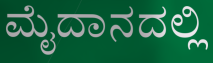
ಮೈದಾನದಲ್ಲಿ